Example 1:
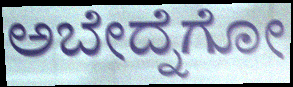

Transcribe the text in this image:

ಅಬೇದ್ನೆಗೋ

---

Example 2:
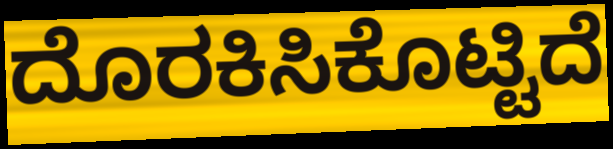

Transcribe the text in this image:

ದೊರಕಿಸಿಕೊಟ್ಟಿದೆ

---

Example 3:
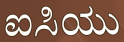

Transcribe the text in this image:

ಐಸಿಯು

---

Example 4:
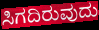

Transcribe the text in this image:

ಸಿಗದಿರುವುದು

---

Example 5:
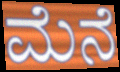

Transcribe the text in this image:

ಮೆನೆ